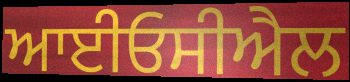
ਆਈਓਸੀਐਲ